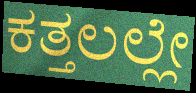
ಕತ್ತಲಲ್ಲೇ